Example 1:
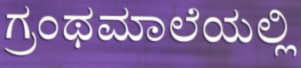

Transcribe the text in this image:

ಗ್ರಂಥಮಾಲೆಯಲ್ಲಿ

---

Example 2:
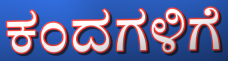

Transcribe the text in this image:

ಕಂದಗಳಿಗೆ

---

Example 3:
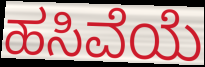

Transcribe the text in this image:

ಹಸಿವೆಯೆ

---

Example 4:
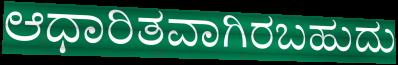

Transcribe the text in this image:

ಆಧಾರಿತವಾಗಿರಬಹುದು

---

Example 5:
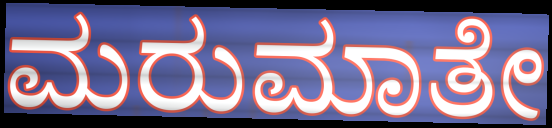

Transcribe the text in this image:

ಮರುಮಾತೇ